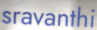
sravanthi